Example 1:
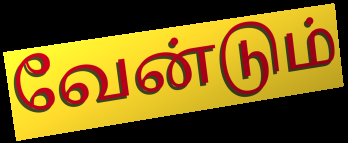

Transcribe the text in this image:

வேன்டும்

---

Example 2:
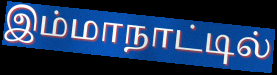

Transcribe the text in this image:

இம்மாநாட்டில்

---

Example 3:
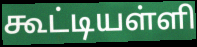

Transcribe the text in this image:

கூட்டியள்ளி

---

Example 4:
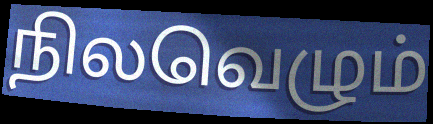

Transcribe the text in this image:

நிலவெழும்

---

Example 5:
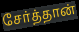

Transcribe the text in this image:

சேர்த்தான்